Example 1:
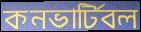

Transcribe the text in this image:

কনভার্টিবল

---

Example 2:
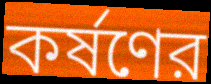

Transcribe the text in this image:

কর্ষণের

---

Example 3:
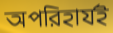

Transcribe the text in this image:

অপরিহার্যই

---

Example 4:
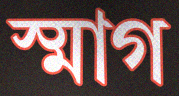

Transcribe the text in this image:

স্মাগ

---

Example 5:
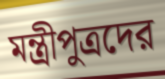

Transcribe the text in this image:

মন্ত্রীপুত্রদের